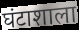
घंटाशाला